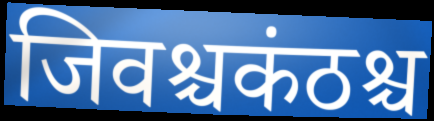
जिवश्चकंठश्च